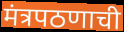
मंत्रपठणाची